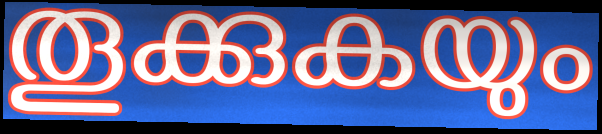
തൂക്കുകയും